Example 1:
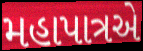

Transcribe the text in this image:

મહાપાત્રએ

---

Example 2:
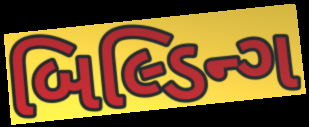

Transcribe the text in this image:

બિલ્ડિન્ગ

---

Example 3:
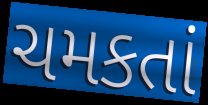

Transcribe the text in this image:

ચમકતાં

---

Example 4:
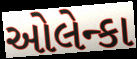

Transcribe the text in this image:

ઓલેન્કા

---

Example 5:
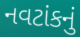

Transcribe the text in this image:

નવટાંકનું